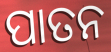
ପାତନ